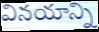
వినయాన్ని